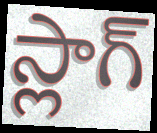
స్లాగ్